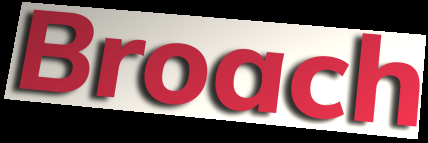
Broach